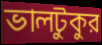
ভালটুকুর